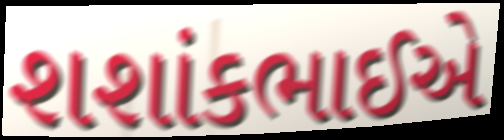
શશાંકભાઈએ